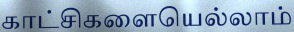
காட்சிகளையெல்லாம்